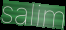
salim